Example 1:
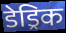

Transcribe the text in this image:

डेड्रिक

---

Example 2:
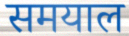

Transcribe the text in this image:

समयाल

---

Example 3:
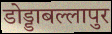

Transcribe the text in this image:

डोड्डाबल्लापुर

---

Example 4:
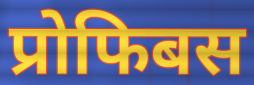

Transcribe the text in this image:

प्रोफिबस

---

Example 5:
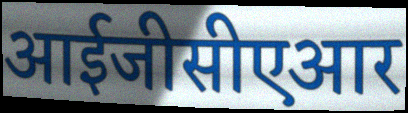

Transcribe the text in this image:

आईजीसीएआर